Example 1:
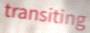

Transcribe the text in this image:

transiting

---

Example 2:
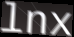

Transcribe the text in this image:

lnx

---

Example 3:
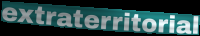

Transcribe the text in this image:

extraterritorial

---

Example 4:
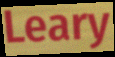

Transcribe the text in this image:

Leary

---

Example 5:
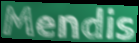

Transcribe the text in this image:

Mendis